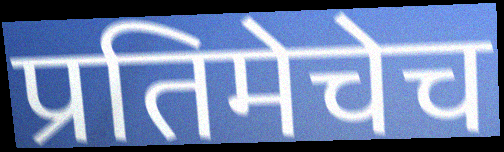
प्रतिमेचेच